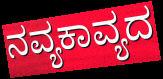
ನವ್ಯಕಾವ್ಯದ